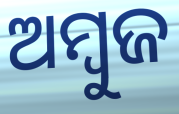
ଅମ୍ୱୁଜ